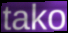
tako